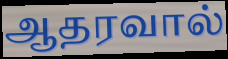
ஆதரவால்